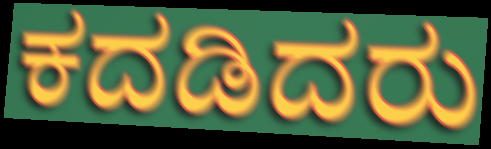
ಕದಡಿದರು